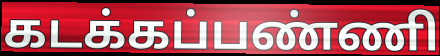
கடக்கப்பண்ணி